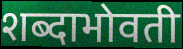
शब्दाभोवती